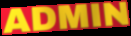
ADMIN